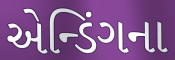
એન્ડિંગના